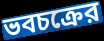
ভবচক্রের